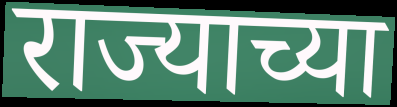
राज्याच्या